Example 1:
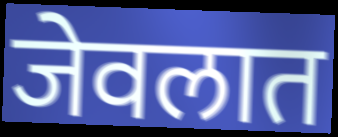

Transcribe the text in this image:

जेवलात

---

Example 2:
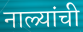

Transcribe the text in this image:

नाल्यांची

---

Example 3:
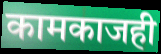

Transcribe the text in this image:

कामकाजही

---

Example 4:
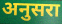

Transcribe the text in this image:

अनुसरा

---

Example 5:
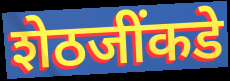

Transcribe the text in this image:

शेठजींकडे